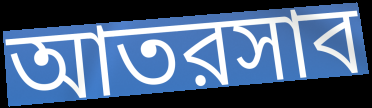
আতরসাব